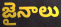
జైనాలు